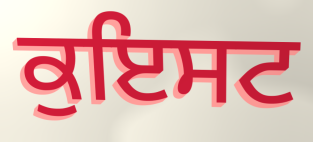
ਕੁਇਸਟ